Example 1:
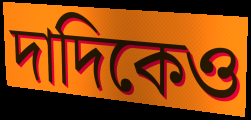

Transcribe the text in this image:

দাদিকেও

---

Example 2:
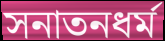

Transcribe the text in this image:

সনাতনধর্ম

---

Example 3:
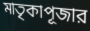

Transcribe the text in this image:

মাতৃকাপূজার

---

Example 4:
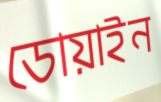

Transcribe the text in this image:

ডোয়াইন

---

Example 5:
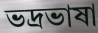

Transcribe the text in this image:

ভদ্রভাষা